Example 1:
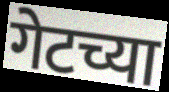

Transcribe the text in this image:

गेटच्या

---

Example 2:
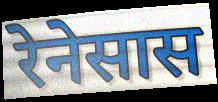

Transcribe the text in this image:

रेनेसास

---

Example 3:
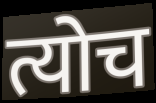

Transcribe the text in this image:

त्योच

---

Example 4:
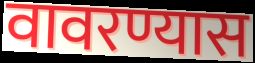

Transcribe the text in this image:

वावरण्यास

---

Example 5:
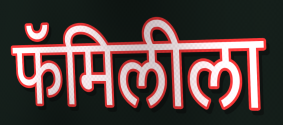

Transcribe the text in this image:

फॅमिलीला